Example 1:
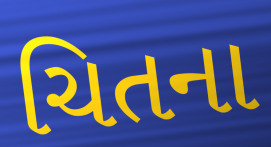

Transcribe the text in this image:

ચિતના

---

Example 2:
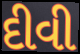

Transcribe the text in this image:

દીવી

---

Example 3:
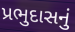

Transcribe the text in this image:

પ્રભુદાસનું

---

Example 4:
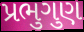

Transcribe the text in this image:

પ્રભુગુણ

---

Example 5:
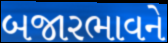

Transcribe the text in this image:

બજારભાવને